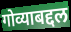
गोव्याबद्दल